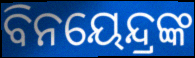
ବିନୟେନ୍ଦ୍ରଙ୍କ